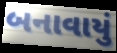
બનાવાયું